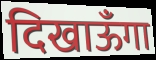
दिखाऊँगा